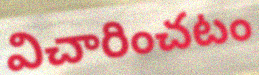
విచారించటం